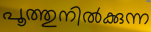
പൂത്തുനിൽക്കുന്ന